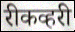
रीकव्हरी